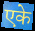
एके